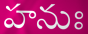
హనుః